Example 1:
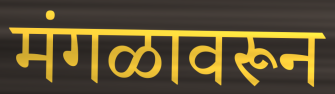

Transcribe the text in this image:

मंगळावरून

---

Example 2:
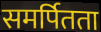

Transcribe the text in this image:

समर्पितता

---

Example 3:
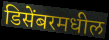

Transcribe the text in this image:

डिसेंबरमधील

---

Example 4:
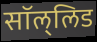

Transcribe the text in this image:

सॉल्लिड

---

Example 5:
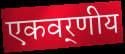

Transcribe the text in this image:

एकवर्णीय